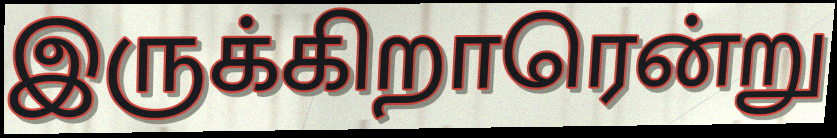
இருக்கிறாரென்று